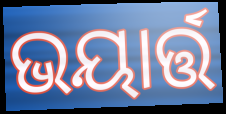
ଭୟାର୍ତ୍ତ